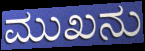
ಮುಖನು